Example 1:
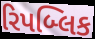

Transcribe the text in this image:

રિપબ્લિક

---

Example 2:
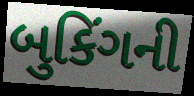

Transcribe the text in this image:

બુકિંગની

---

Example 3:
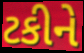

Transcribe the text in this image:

ટકીને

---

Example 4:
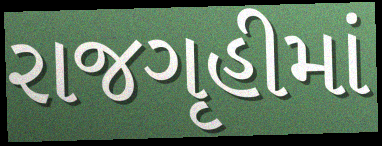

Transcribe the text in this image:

રાજગૃહીમાં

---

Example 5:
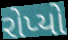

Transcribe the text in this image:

રોપ્યો